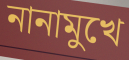
নানামুখে